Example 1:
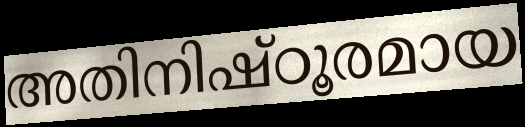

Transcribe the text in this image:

അതിനിഷ്ഠൂരമായ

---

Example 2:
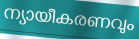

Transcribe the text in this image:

ന്യായീകരണവും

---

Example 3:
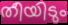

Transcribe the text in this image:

തീയിടും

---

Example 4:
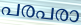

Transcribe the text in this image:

പരപരാ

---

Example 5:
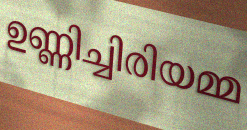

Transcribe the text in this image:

ഉണ്ണിച്ചിരിയമ്മ